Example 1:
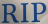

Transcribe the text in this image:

RIP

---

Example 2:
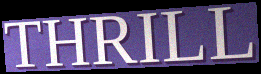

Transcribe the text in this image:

THRILL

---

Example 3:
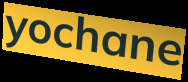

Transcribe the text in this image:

yochane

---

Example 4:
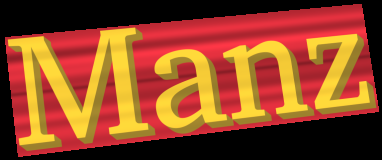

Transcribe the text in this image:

Manz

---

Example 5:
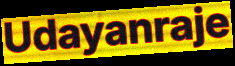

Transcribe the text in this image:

Udayanraje